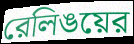
রেলিঙয়ের